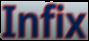
Infix